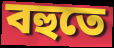
বহুতে